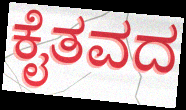
ಕೈತವದ